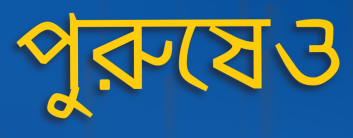
পুৰুষেও